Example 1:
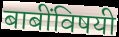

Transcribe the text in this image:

बाबींविषयी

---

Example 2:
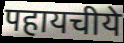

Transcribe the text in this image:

पहायचीये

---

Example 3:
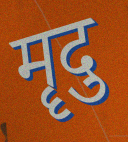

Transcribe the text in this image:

मॄदु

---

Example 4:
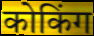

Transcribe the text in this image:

कोकिंग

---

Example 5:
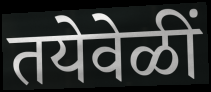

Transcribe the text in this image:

तयेवेळीं